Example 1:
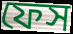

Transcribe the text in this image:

ফেস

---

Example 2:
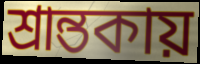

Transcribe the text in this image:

শ্রান্তকায়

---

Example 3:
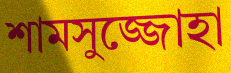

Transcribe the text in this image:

শামসুজ্জোহা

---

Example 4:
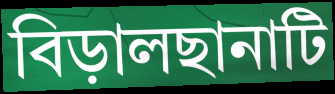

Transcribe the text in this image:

বিড়ালছানাটি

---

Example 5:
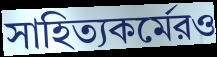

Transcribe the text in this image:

সাহিত্যকর্মেরও